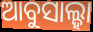
ଆବୁସାଲ୍ହା